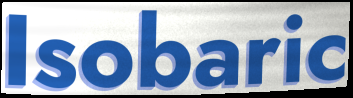
Isobaric